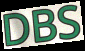
DBS